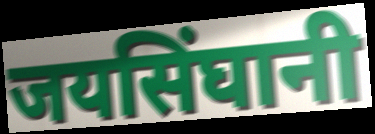
जयसिंघानी